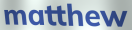
matthew